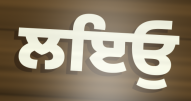
ਲਇਓੁ